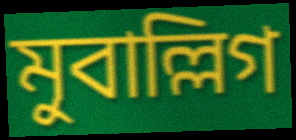
মুবাল্লিগ